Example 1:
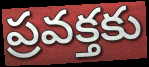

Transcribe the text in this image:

ప్రవక్తకు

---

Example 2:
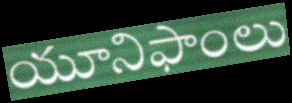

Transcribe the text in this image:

యూనిఫాంలు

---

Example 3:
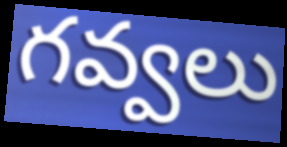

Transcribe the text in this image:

గవ్వలు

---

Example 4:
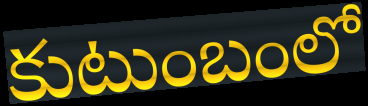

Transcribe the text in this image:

కుటుంబంలో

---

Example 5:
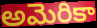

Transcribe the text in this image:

అమెరికా